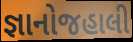
જ્ઞાનોજહાલી